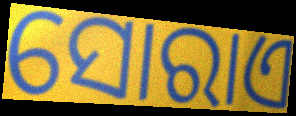
ସୋରାଏ